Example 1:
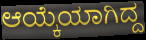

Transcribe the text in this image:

ಆಯ್ಕೆಯಾಗಿದ್ದ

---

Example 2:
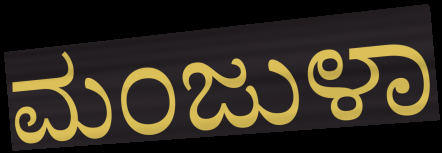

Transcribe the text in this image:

ಮಂಜುಳಾ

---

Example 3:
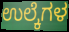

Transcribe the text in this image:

ಉಲ್ಕೆಗಳ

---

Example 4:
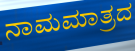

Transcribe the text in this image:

ನಾಮಮಾತ್ರದ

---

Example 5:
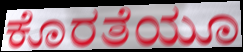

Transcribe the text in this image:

ಕೊರತೆಯೂ